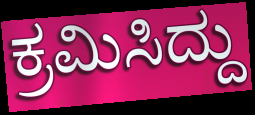
ಕ್ರಮಿಸಿದ್ದು